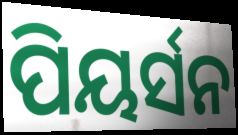
ପିୟର୍ସନ